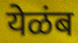
येळंब